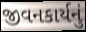
જીવનકાર્યનું